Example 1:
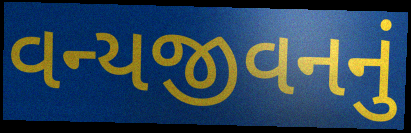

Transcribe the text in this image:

વન્યજીવનનું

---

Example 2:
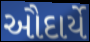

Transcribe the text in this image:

ઔદાર્યે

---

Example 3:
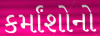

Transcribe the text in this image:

કર્માંશોનો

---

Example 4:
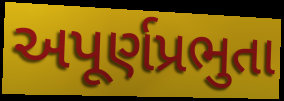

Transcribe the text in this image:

અપૂર્ણપ્રભુતા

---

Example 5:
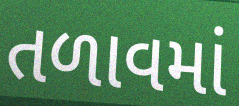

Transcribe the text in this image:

તળાવમાં